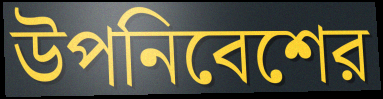
উপনিবেশের